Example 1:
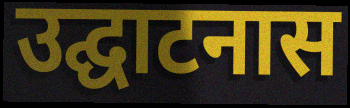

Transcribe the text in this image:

उद्घाटनास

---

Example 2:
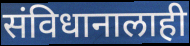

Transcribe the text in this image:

संविधानालाही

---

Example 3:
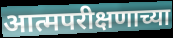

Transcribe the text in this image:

आत्मपरीक्षणाच्या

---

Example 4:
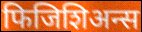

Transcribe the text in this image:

फिजिशिअन्स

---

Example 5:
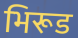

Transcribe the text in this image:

भिरूड